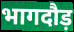
भागदौड़